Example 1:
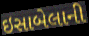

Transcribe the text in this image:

ઇસાબેલાની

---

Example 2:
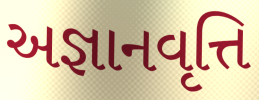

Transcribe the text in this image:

અજ્ઞાનવૃત્તિ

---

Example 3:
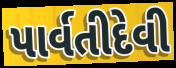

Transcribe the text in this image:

પાર્વતીદેવી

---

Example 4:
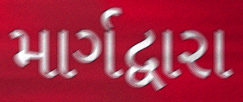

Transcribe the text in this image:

માર્ગદ્વારા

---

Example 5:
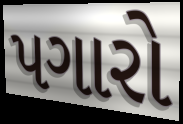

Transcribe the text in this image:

પગારો